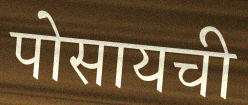
पोसायची